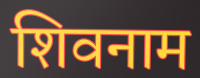
शिवनाम